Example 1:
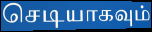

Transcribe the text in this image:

செடியாகவும்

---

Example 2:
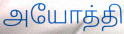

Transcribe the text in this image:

அயோத்தி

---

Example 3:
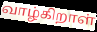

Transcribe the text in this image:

வாழ்கிறாள்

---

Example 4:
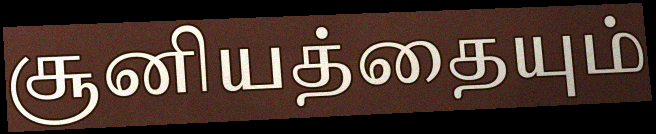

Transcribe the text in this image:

சூனியத்தையும்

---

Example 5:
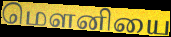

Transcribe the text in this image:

மௌனியை